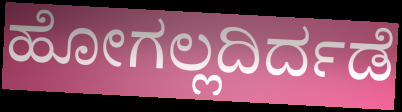
ಹೋಗಲ್ಲದಿರ್ದಡೆ